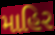
માહિર